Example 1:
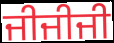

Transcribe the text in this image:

ਜੀਜੀਜੀ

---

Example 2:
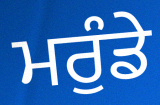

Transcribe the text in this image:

ਮਰੁੰਡੇ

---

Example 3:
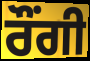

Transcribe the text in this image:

ਰੌਂਗੀ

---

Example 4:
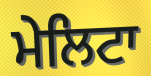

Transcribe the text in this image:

ਮੇਲਿਟਾ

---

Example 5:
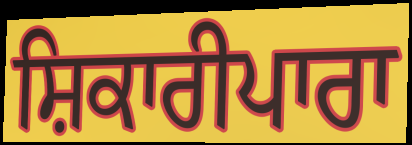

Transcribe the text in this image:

ਸ਼ਿਕਾਰੀਪਾਰਾ